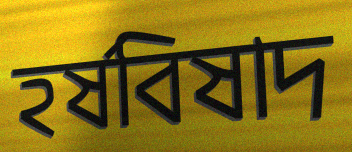
হর্ষবিষাদ